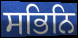
ਸਭਿਨਿ